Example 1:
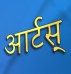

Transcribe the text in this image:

आर्टस्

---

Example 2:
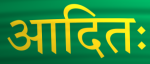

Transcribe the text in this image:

आदितः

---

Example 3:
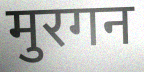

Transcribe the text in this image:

मुरगन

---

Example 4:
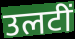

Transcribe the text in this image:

उलटीं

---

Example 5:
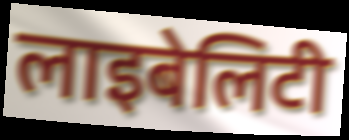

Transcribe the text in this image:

लाइबेलिटी